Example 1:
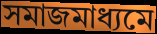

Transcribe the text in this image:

সমাজমাধ্যমে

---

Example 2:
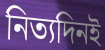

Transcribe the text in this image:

নিত্যদিনই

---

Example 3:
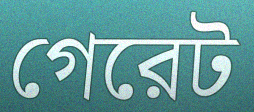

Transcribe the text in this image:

গেরেট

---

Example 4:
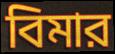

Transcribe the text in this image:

বিমার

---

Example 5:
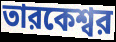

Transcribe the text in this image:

তারকেশ্বর